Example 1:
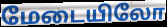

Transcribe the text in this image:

மேடையிலோ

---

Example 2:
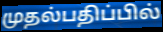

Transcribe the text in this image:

முதல்பதிப்பில்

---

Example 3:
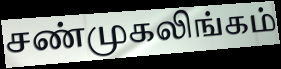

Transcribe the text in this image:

சண்முகலிங்கம்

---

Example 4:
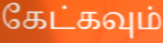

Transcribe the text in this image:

கேட்கவும்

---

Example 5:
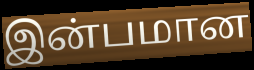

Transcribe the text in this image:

இன்பமான